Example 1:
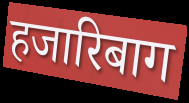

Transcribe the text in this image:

हजारिबाग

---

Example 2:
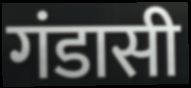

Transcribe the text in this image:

गंडासी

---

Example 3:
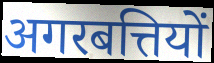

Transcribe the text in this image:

अगरबत्तियों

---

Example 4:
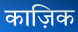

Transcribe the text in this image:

काज़िक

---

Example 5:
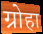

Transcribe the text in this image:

ग्रोहा